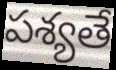
పశ్యతే